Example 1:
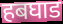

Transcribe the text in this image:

हबघाड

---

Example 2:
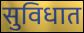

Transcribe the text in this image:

सुविधात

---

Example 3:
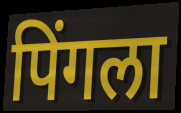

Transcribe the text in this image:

पिंगला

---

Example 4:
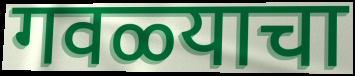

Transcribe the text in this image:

गवळ्याचा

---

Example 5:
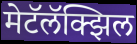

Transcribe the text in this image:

मेटॅलॅक्झिल